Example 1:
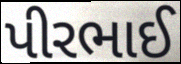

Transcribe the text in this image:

પીરભાઈ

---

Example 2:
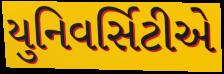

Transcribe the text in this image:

યુનિવર્સિટીએ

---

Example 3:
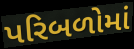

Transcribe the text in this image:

પરિબળોમાં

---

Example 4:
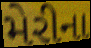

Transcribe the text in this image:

મેરીના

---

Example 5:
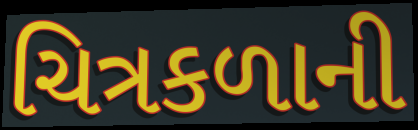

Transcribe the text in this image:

ચિત્રકળાની